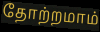
தோற்றமாம்